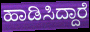
ಹಾಡಿಸಿದ್ದಾರೆ